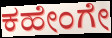
ಕಹೇಂಗೇ